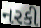
નરકી